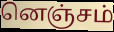
னெஞ்சம்